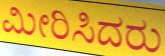
ಮೀರಿಸಿದರು